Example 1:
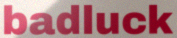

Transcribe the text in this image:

badluck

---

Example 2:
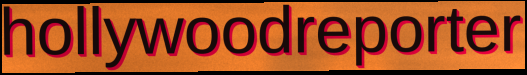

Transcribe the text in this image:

hollywoodreporter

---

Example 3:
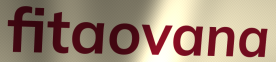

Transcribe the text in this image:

fitaovana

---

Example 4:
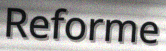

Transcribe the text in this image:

Reforme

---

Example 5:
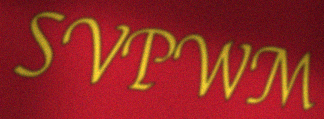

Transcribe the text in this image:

SVPWM